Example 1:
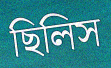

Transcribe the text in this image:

ছিলিস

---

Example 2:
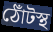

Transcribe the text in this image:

ঠোঁটস্থ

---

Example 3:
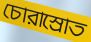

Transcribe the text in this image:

চোরাস্রোত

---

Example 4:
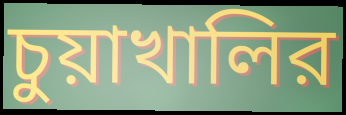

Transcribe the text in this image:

চুয়াখালির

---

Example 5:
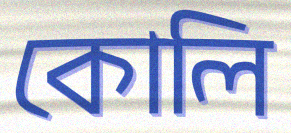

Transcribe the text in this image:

কোলি